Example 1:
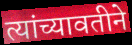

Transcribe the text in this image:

त्यांच्यावतीने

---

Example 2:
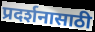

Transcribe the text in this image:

प्रदर्शनासाठी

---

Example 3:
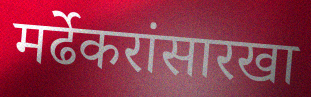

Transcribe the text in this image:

मर्ढेकरांसारखा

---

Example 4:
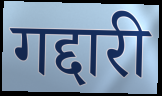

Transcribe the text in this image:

गद्दारी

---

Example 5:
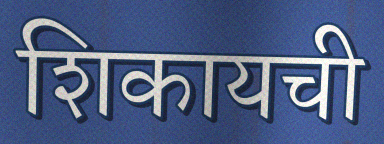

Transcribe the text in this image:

शिकायची